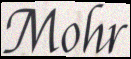
Mohr